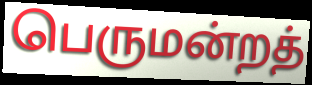
பெருமன்றத்